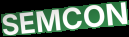
SEMCON